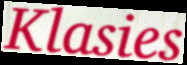
Klasies